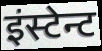
इंस्टेन्ट